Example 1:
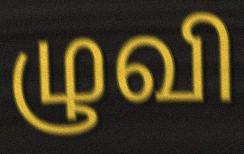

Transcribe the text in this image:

ழுவி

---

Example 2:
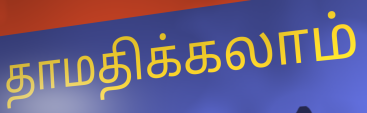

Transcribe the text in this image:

தாமதிக்கலாம்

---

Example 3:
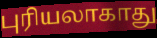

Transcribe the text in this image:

புரியலாகாது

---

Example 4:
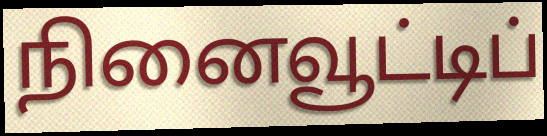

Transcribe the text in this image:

நினைவூட்டிப்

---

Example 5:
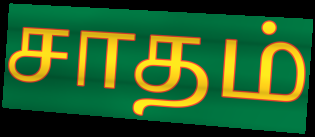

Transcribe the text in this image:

சாதம்